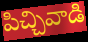
పిచ్చివాడి